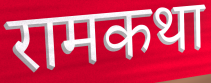
रामकथा